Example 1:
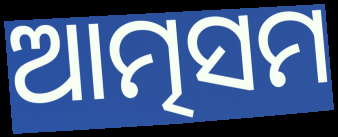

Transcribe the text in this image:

ଆତ୍ମସମ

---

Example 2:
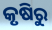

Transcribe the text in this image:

କୃଷିରୁ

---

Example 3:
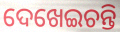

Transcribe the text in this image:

ଦେଖେଇଚନ୍ତି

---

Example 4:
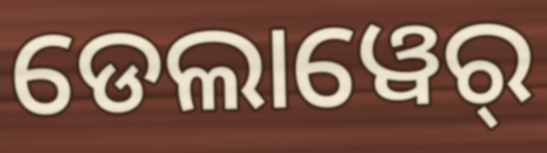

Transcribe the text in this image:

ଡେଲାୱେର୍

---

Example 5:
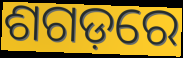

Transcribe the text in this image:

ଶଗଡ଼ରେ